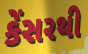
કેંસરથી